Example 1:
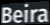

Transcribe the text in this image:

Beira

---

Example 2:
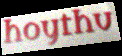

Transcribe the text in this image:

hoythu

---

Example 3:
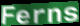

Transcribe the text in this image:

Ferns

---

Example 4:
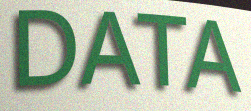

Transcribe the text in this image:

DATA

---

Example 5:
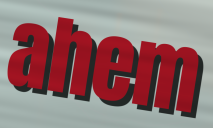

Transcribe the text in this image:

ahem